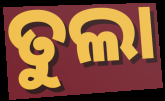
ତୁଲା